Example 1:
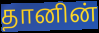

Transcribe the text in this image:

தானின்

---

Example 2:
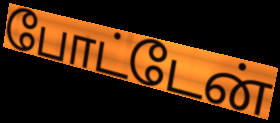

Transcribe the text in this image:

போட்டேன்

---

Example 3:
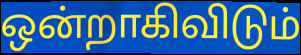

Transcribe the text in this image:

ஒன்றாகிவிடும்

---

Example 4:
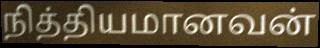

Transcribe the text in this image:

நித்தியமானவன்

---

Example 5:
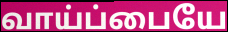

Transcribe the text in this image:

வாய்ப்பையே